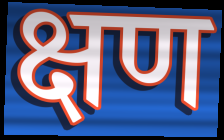
क्षण